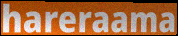
hareraama